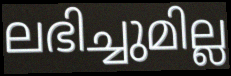
ലഭിച്ചുമില്ല